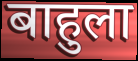
बाहुला